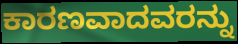
ಕಾರಣವಾದವರನ್ನು